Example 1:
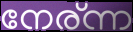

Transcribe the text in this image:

നേര്ന്ന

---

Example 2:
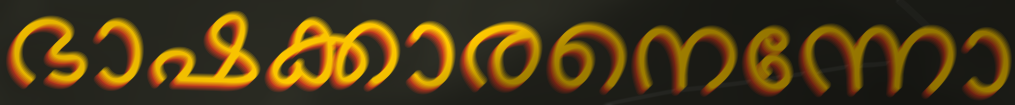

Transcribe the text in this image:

ഭാഷക്കാരനെന്നോ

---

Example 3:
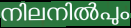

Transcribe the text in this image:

നിലനിൽപും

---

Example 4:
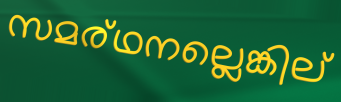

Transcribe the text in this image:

സമര്ഥനല്ലെങ്കില്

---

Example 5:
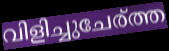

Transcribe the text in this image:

വിളിച്ചുചേര്ത്ത